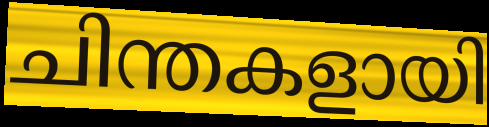
ചിന്തകളായി